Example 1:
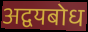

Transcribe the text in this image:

अद्वयबोध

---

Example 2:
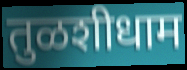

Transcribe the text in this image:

तुळशीधाम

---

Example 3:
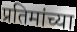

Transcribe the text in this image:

प्रतिमांच्या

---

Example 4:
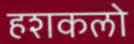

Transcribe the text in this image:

हशकलो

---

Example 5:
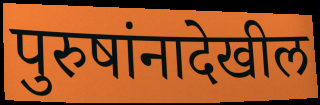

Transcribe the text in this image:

पुरुषांनादेखील